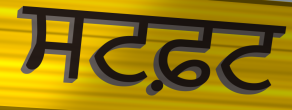
ਸਟਫ਼ਟ